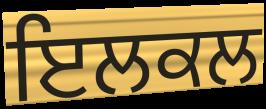
ਇਲਕਲ